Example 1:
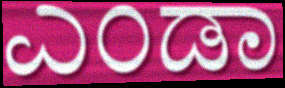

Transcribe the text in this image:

ಎಂಡಾ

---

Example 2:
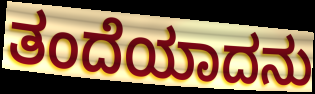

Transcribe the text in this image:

ತಂದೆಯಾದನು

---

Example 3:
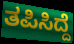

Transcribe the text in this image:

ತಪಿಸಿದ್ದೆ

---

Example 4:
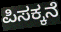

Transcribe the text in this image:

ಪಿಸಕ್ಕನೆ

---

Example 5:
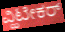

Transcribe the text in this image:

ವ್ಹಿಟೇಕರ್